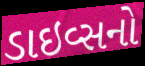
ડાઇવ્સનો